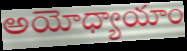
అయోధ్యాయాం